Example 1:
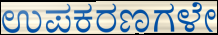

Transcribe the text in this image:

ಉಪಕರಣಗಳೇ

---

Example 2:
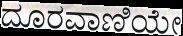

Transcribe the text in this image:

ದೂರವಾಣಿಯೇ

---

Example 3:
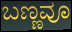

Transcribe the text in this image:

ಬಣ್ಣವೂ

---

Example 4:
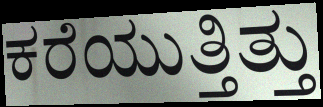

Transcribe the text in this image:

ಕರೆಯುತ್ತಿತ್ತು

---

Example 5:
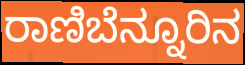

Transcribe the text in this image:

ರಾಣಿಬೆನ್ನೂರಿನ